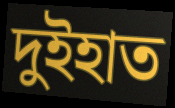
দুইহাত